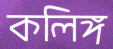
কলিঙ্গ